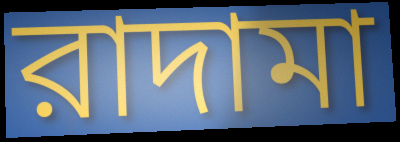
রাদামা